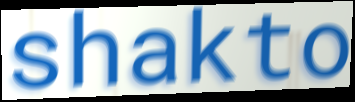
shakto